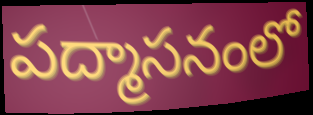
పద్మాసనంలో